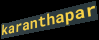
karanthapar